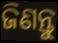
ଜିଣନ୍ତୁ